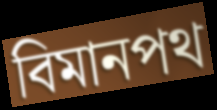
বিমানপথ